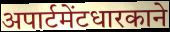
अपार्टमेंटधारकाने